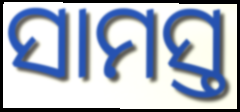
ସାମସ୍ତ